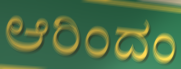
ಆರಿಂದಂ